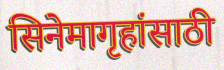
सिनेमागृहांसाठी